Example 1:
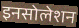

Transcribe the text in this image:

इनसोलेशन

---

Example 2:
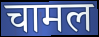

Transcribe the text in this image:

चामल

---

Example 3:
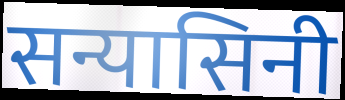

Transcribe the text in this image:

सन्यासिनी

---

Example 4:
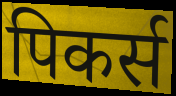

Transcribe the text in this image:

पिकर्स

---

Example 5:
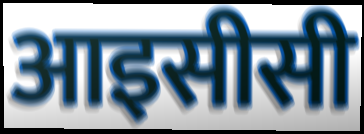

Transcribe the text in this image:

आइसीसी